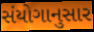
સંયોગાનુસાર